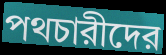
পথচারীদের